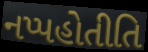
નપ્પહોતીતિ